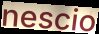
nescio